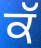
ਕੱ